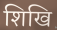
शिखि